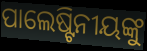
ପାଲେଷ୍ଟିନୀୟଙ୍କୁ